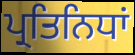
ਪ੍ਰਤਿਨਿਧਾਂ